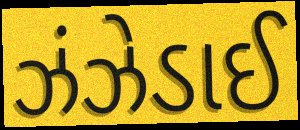
ઝંઝેડાઈ